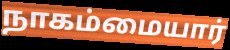
நாகம்மையார்